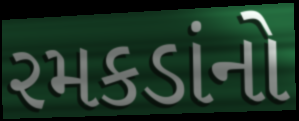
રમકડાંનો